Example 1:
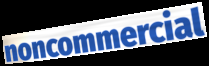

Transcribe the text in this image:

noncommercial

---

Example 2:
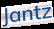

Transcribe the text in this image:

Jantz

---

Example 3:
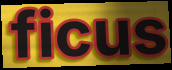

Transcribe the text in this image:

ficus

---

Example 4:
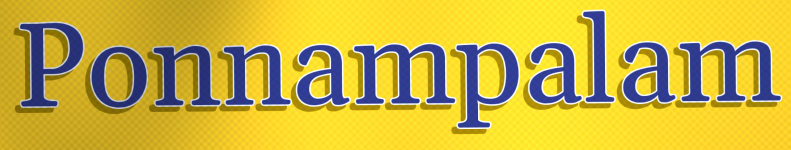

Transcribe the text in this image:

Ponnampalam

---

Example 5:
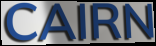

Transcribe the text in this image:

CAIRN